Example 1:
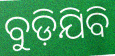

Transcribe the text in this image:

ବୁଡ଼ିଯିବି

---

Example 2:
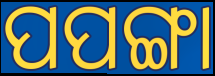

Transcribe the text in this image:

ପପଙ୍ଗା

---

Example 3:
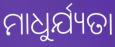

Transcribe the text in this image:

ମାଧୁର୍ଯ୍ୟତା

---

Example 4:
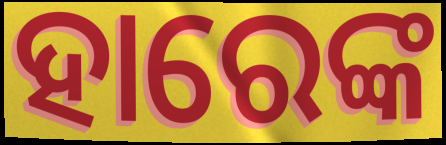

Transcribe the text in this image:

ହାରେଙ୍କ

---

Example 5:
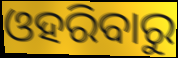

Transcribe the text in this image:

ଓହରିବାରୁ